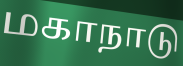
மகாநாடு